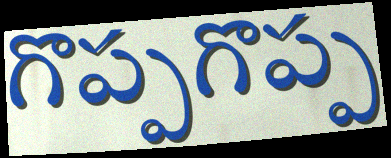
గొప్పగొప్ప